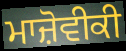
ਮਾਜ਼ੋਵੀਕੀ